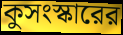
কুসংস্কারের